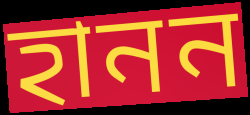
হানন